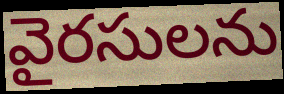
వైరసులను